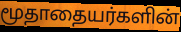
மூதாதையர்களின்